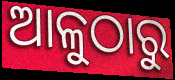
ଆଳୁଠାରୁ